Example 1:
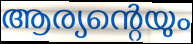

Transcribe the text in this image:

ആര്യന്റെയും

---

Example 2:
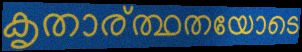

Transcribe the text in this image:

കൃതാര്ത്ഥതയോടെ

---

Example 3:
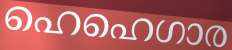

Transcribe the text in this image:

ഹെഹെഗാര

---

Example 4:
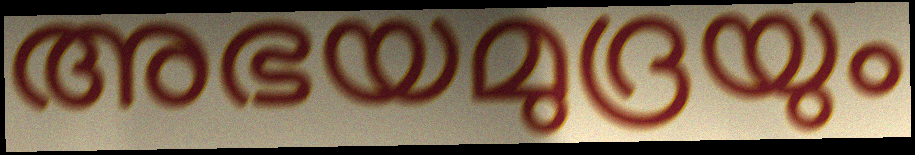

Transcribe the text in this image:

അഭയമുദ്രയും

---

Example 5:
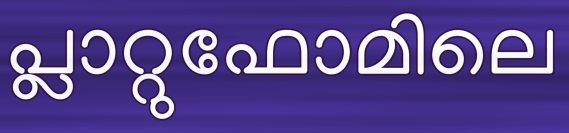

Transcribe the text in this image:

പ്ലാറ്റുഫോമിലെ